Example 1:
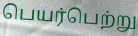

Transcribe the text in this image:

பெயர்பெற்று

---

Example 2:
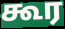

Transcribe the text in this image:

கூர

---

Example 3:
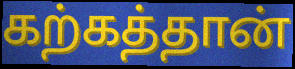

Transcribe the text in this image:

கற்கத்தான்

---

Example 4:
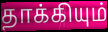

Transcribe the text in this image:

தாக்கியும்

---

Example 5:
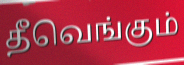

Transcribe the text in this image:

தீவெங்கும்